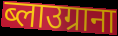
ब्लाउग्राना